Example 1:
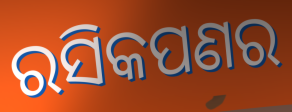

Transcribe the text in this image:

ରସିକପଣର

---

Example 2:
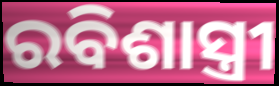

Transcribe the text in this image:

ରବିଶାସ୍ତ୍ରୀ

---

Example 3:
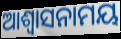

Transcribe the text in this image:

ଆଶ୍ୱାସନାମୟ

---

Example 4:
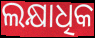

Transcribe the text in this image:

ଲକ୍ଷାଧିକ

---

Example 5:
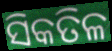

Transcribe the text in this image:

ସିକତିଳ